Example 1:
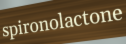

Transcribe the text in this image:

spironolactone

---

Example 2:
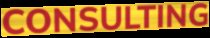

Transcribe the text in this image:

CONSULTING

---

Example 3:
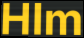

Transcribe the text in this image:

HIm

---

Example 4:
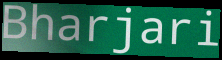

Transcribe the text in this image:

Bharjari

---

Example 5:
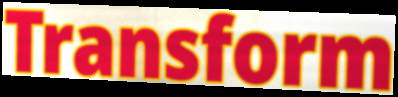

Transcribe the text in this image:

Transform